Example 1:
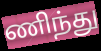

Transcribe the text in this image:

ணிந்து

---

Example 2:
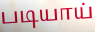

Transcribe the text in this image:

படியாய்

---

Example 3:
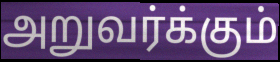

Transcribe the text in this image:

அறுவர்க்கும்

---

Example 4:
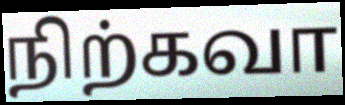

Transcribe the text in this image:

நிற்கவா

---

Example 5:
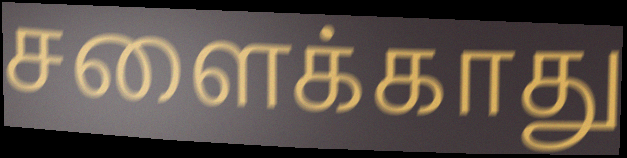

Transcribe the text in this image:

சளைக்காது